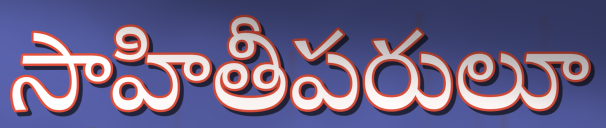
సాహితీపరులూ